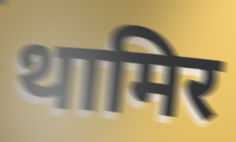
थामिर